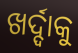
ଖର୍ଦ୍ଦାକୁ